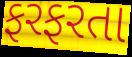
ફરફરતા